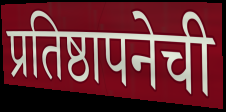
प्रतिष्ठापनेची